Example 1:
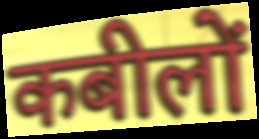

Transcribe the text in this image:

कबीलों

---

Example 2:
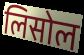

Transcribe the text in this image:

लिसोल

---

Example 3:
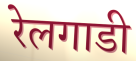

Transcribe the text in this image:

रेलगाडी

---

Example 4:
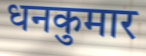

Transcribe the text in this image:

धनकुमार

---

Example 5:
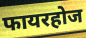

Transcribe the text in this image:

फायरहोज